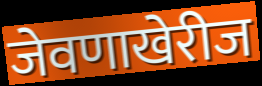
जेवणाखेरीज